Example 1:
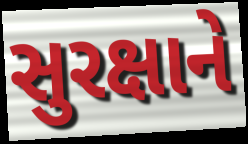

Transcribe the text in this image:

સુરક્ષાને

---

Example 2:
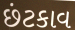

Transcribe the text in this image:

છંટકાવ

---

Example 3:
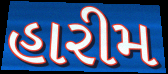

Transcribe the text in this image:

હારીમ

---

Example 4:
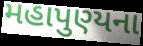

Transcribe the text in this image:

મહાપુણ્યના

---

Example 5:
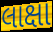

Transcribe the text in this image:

લાક્ષા